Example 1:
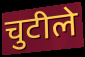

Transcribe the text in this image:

चुटीले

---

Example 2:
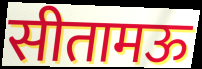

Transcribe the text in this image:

सीतामऊ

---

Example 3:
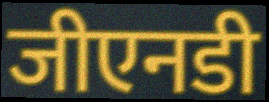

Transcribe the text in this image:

जीएनडी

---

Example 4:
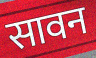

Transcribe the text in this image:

सावन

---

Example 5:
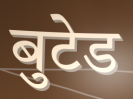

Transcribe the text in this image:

बुटेड